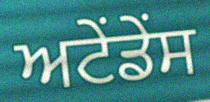
ਅਟੇਂਡੇਂਸ